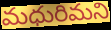
మధురిమని